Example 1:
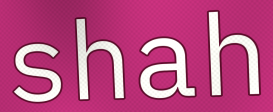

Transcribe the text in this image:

shah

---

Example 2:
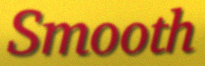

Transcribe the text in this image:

Smooth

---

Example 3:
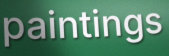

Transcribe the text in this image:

paintings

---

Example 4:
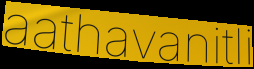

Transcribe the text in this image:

aathavanitli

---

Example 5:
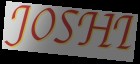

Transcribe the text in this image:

JOSHI